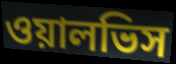
ওয়ালভিস